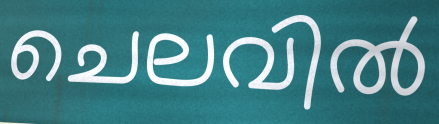
ചെലവിൽ